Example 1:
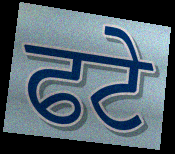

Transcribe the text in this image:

ਫਟੇ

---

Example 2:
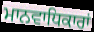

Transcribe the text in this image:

ਮਾਨਵਾਧਿਕਾਰਾਂ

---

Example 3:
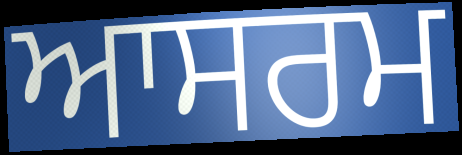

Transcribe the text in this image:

ਆਸਰਮ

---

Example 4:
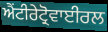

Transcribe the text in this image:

ਐਂਟੀਰੇਟ੍ਰੋਵਾਈਰਲ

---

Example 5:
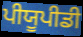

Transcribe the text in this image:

ਪੀਯੂਪੀਡੀ